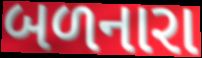
બળનારા